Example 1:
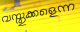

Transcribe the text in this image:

വസ്തുക്കളെന്ന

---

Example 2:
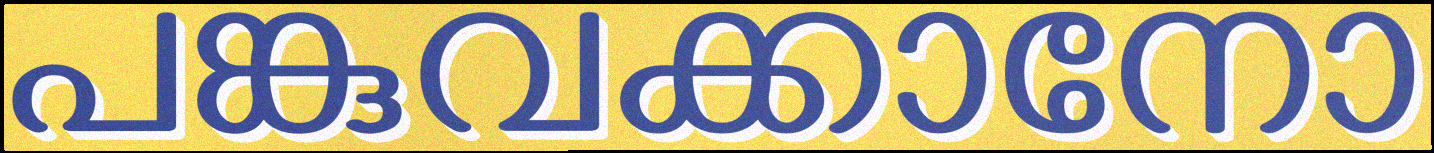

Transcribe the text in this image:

പങ്കുവക്കാനോ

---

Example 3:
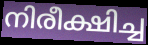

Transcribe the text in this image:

നിരീക്ഷിച്ച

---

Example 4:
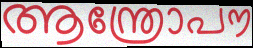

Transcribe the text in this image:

ആന്ത്രോപൗ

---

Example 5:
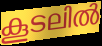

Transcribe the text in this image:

കൂടലിൽ